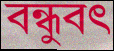
বন্ধুবৎ